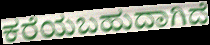
ಕರೆಯಬಹುದಾಗಿದೆ